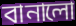
বানালো